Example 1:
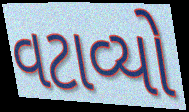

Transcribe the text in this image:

વટાવ્યો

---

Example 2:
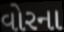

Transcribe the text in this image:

વોરના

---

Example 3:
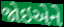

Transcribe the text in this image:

જોઇએને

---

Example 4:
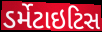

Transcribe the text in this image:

ડર્મેટાઇટિસ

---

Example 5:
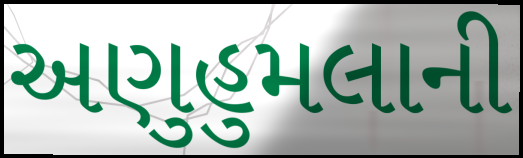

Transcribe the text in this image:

અણુહુમલાની